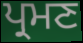
ਪ੍ਰਮਣ